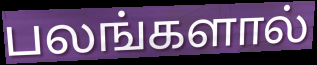
பலங்களால்